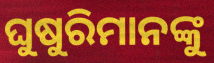
ଘୁଷୁରିମାନଙ୍କୁ